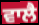
ਵਾਲੈ